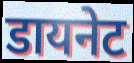
डायनेट